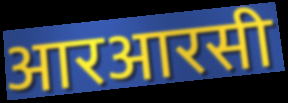
आरआरसी